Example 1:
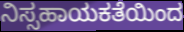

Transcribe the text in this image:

ನಿಸ್ಸಹಾಯಕತೆಯಿಂದ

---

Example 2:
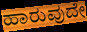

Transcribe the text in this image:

ಹಾರುವುದೇ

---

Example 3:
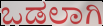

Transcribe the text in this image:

ಒಡಲಾಗಿ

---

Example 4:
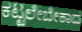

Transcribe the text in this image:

ಕಟ್ಟಲೇಬೇಕಾದ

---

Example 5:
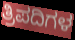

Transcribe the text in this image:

ತ್ರಿಪದಿಗಳ